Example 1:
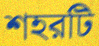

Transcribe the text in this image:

শহরটি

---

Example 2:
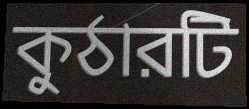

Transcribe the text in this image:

কুঠারটি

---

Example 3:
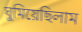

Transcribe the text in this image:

ঘুমিয়েছিলাম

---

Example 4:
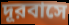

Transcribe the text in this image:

দূরবাসে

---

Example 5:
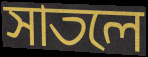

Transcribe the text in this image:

সাতলে